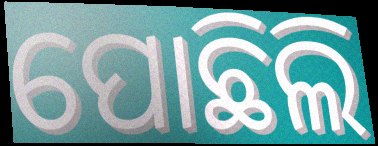
ପୋଛିଲି